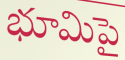
భూమిపై